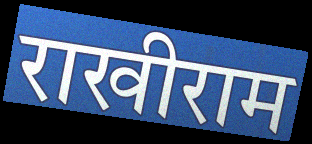
राखीराम